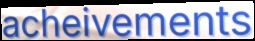
acheivements